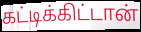
கட்டிக்கிட்டான்